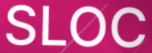
SLOC